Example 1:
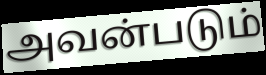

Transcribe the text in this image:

அவன்படும்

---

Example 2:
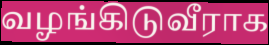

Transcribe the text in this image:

வழங்கிடுவீராக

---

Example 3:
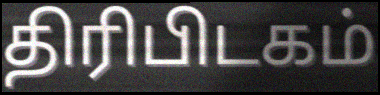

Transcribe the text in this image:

திரிபிடகம்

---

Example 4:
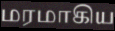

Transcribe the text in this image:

மரமாகிய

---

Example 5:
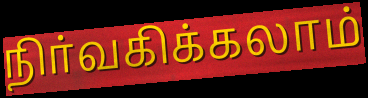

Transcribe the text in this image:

நிர்வகிக்கலாம்